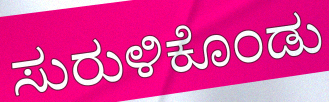
ಸುರುಳಿಕೊಂಡು